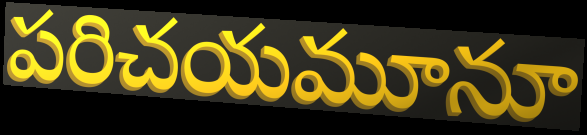
పరిచయమూనూ